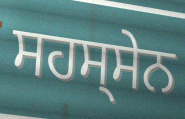
ਸਹਸ੍ਸੇਨ